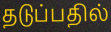
தடுப்பதில்